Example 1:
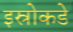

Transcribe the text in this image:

इस्रोकडे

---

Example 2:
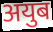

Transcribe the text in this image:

अयुब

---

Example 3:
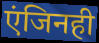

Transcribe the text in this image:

एंजिनही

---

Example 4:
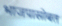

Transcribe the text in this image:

भाजपासोबत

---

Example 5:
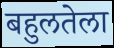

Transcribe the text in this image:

बहुलतेला